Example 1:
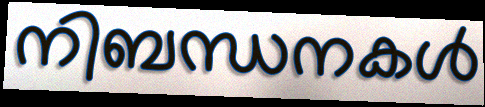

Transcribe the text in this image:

നിബന്ധനകൾ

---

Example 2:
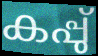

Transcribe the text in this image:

കപ്പു്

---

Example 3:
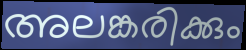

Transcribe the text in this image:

അലങ്കരിക്കും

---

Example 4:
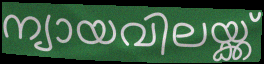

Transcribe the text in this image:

ന്യായവിലയ്ക്ക്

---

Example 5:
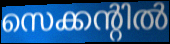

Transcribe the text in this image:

സെക്കന്റിൽ